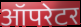
ऑपरेटर